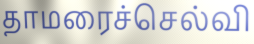
தாமரைச்செல்வி